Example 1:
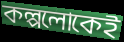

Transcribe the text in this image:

কল্পলোকেই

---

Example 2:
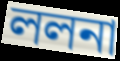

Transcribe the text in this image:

ললনা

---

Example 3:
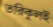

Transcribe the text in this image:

তরিকুলই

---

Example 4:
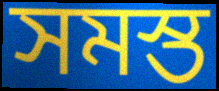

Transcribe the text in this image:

সমস্ত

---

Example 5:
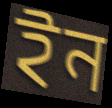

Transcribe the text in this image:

ইন